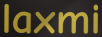
laxmi